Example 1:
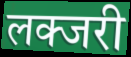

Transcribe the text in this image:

लक्‍जरी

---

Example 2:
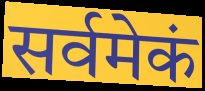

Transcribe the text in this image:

सर्वमेकं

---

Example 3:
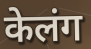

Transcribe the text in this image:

केलंग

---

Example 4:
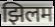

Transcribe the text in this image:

झिलम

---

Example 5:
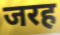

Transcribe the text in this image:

जरह